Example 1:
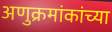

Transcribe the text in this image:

अणुक्रमांकांच्या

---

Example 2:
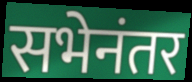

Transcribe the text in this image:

सभेनंतर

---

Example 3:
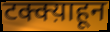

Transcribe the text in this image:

टक्क्य़ाहून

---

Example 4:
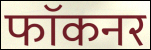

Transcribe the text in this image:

फॉकनर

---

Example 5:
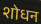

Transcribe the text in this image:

शोधन